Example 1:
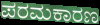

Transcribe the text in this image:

ಪರಮಕಾರಣ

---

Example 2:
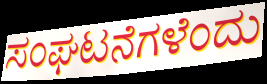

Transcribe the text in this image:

ಸಂಘಟನೆಗಳೆಂದು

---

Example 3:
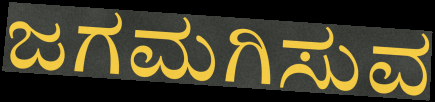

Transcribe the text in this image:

ಜಗಮಗಿಸುವ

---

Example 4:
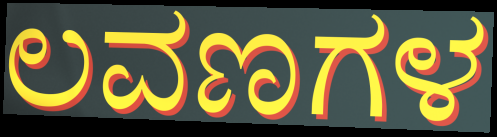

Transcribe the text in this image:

ಲವಣಗಳ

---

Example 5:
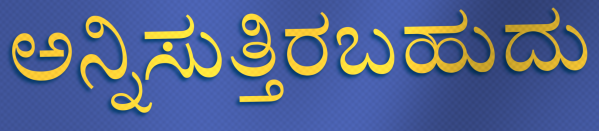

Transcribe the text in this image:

ಅನ್ನಿಸುತ್ತಿರಬಹುದು